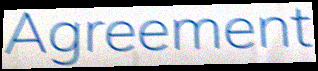
Agreement